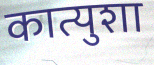
कात्युशा